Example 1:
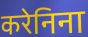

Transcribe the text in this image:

करेनिना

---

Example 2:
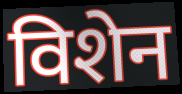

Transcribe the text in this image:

विशेन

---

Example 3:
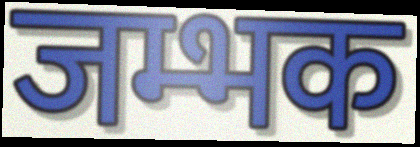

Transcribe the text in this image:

जम्भक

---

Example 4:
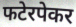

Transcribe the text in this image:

फटेरपेकर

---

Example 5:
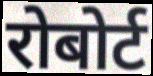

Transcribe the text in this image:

रोबोर्ट